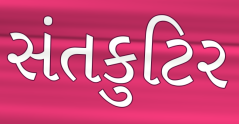
સંતકુટિર